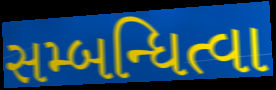
સમ્બન્ધિત્વા